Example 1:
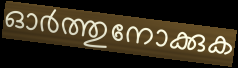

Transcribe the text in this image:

ഓർത്തുനോക്കുക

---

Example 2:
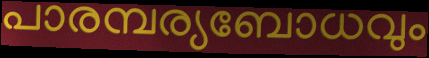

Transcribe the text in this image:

പാരമ്പര്യബോധവും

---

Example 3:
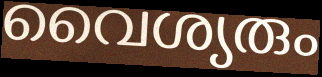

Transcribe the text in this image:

വൈശ്യരും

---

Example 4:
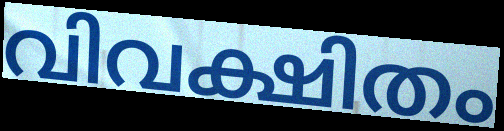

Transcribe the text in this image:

വിവക്ഷിതം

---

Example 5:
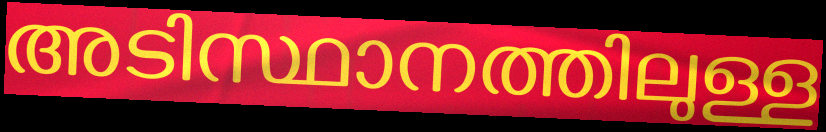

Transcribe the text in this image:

അടിസ്ഥാനത്തിലുള്ള